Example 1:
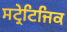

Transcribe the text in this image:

ਸਟ੍ਰੇਟਿਜਿਕ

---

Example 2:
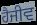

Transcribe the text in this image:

ਹੈਜੀਵ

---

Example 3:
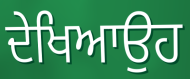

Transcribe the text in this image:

ਦੇਖਿਆਉਹ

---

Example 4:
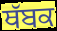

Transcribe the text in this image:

ਥੱਬਕ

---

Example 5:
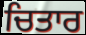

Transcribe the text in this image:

ਚਿਤਾਰ